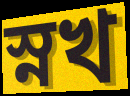
স্নখ